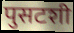
पुसटशी